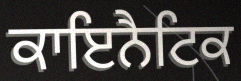
ਕਾਇਨੈਟਿਕ